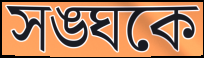
সঙ্ঘকে